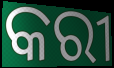
କରୀ